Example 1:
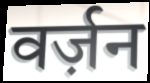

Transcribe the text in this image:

वर्ज़न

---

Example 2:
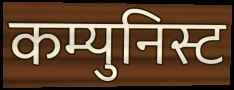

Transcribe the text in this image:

कम्युनिस्ट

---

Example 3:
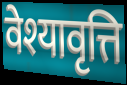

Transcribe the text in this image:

वेश्यावृत्ति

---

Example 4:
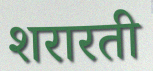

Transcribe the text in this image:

शरारती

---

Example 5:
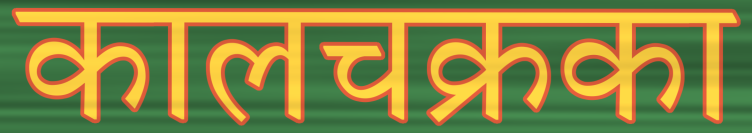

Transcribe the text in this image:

कालचक्रका